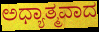
ಅಧ್ಯಾತ್ಮವಾದ